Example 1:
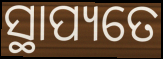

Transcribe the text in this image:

ସ୍ଥାପ୍ୟତେ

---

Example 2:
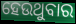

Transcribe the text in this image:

ହେଉଥୁବାର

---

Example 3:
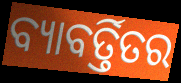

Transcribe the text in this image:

ବ୍ୟାବର୍ତ୍ତିତର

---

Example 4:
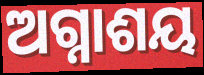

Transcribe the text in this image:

ଅଗ୍ନାଶୟ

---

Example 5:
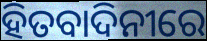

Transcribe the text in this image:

ହିତବାଦିନୀରେ